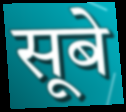
सूबे